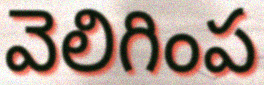
వెలిగింప